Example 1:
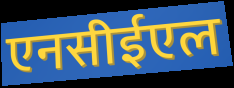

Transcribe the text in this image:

एनसीईएल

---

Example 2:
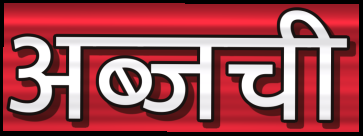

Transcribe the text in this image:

अब्जची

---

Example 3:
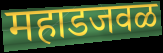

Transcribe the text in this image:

महाडजवळ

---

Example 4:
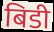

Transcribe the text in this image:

बिडी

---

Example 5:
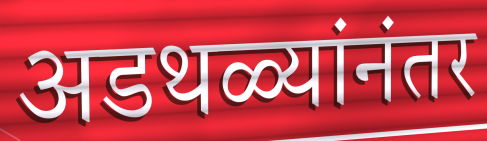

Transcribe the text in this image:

अडथळ्यांनंतर